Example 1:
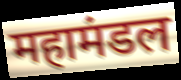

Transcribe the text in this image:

महामंडल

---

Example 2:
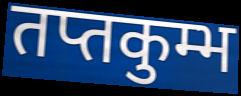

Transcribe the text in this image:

तप्तकुम्भ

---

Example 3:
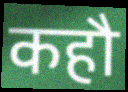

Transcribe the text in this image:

कहौ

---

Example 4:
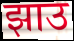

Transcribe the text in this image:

झाउ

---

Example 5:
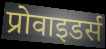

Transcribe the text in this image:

प्रोवाइडर्स